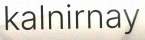
kalnirnay